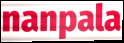
nanpala